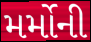
મર્મોની